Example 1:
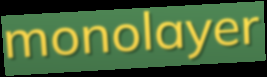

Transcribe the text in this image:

monolayer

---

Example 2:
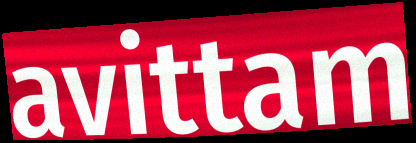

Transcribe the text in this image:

avittam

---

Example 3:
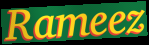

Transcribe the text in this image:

Rameez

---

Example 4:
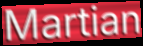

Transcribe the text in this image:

Martian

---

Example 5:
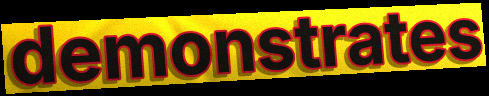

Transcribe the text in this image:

demonstrates